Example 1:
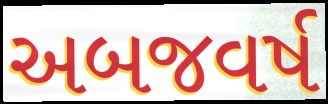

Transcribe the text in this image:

અબજવર્ષ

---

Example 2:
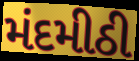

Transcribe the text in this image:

મંદમીઠી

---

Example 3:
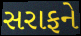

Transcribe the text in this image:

સરાફને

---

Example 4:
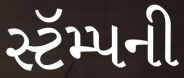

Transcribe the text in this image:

સ્ટૅમ્પની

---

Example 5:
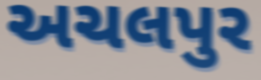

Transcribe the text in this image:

અચલપુર